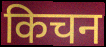
किचन